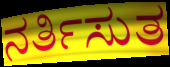
ನರ್ತಿಸುತ